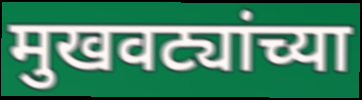
मुखवट्यांच्या